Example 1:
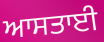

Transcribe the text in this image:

ਆਸਤਾਈ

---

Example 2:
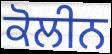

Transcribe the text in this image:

ਕੋਲੀਨ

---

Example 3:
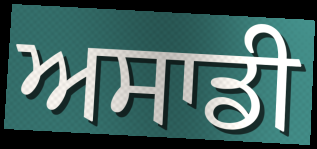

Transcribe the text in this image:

ਅਸਾਡੀ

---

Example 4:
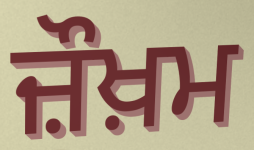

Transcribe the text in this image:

ਜ਼ੌਖ਼ਮ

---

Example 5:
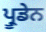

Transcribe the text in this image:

ਪ੍ਰੂਡੇਨ